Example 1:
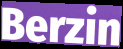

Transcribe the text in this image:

Berzin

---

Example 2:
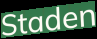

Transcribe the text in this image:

Staden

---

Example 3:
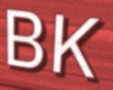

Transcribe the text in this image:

BK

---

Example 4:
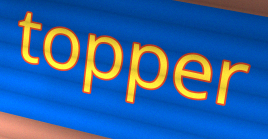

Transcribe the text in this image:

topper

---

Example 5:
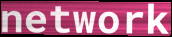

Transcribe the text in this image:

network